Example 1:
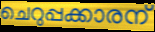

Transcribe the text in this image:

ചെറുപ്പക്കാരന്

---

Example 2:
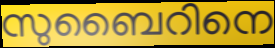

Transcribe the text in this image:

സുബൈറിനെ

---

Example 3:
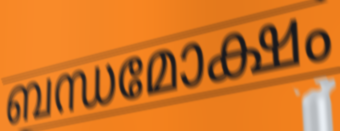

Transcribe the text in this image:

ബന്ധമോക്ഷം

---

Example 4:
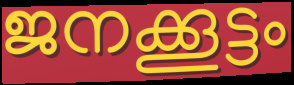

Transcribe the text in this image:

ജനക്കൂട്ടം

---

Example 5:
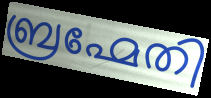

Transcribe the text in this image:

ബ്രഹ്മേതി